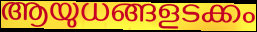
ആയുധങ്ങളടക്കം